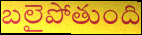
బలైపోతుంది